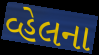
વ્હેલના